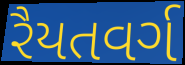
રૈયતવર્ગ